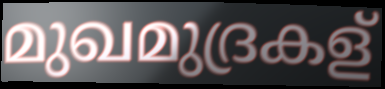
മുഖമുദ്രകള്